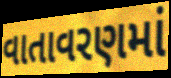
વાતાવરણમાં